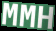
MMH